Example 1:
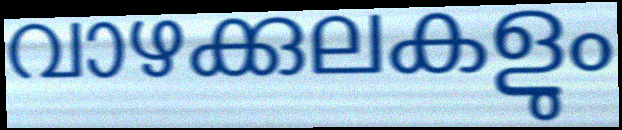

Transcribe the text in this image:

വാഴക്കുലകളും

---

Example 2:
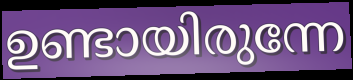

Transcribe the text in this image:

ഉണ്ടായിരുന്നേ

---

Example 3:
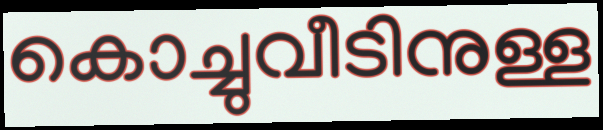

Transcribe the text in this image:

കൊച്ചുവീടിനുള്ള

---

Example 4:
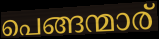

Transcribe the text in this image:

പെങ്ങന്മാര്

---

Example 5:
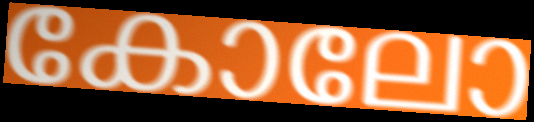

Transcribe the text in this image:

കോലോ